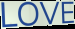
LOVE